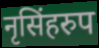
नृसिंहरुप